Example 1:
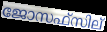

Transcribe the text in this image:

ജോസഫ്സില്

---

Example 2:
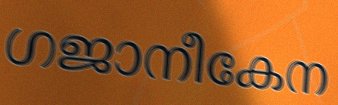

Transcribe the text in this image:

ഗജാനീകേന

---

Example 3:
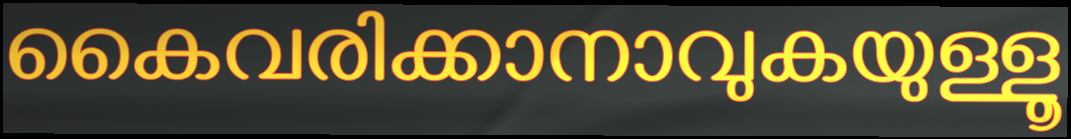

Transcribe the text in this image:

കൈവരിക്കാനാവുകയുള്ളൂ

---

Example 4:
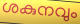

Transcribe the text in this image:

ശകുനവും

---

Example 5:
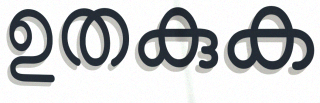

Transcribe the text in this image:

ഉതകുക